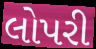
લોપરી